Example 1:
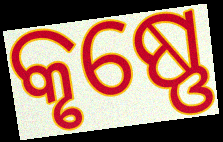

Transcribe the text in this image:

କୃଷ୍ଣେ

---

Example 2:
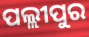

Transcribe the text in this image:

ପଲ୍ଲୀପୁର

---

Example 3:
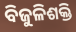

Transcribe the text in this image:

ବିଜୁଳିଶକ୍ତି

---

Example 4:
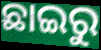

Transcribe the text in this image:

ଛାଇରୁ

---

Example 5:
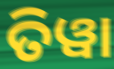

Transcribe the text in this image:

ତିୱା